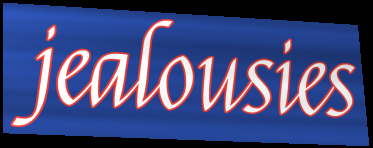
jealousies